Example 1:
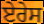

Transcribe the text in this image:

ਏਰੇਸ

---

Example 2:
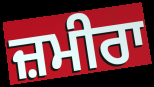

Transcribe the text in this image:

ਜ਼ਮੀਰਾ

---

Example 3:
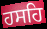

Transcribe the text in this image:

ਹਸਹਿ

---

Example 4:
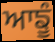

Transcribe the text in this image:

ਆਙੂੰ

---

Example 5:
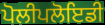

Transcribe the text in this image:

ਪੋਲੀਪਲੋਇਡੀ